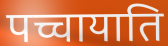
पच्चायाति